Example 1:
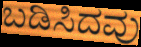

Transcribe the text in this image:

ಬಡಿಸಿದವು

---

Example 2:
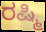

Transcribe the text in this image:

ರಷ್ಮಿ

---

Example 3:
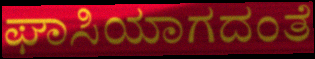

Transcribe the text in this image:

ಘಾಸಿಯಾಗದಂತೆ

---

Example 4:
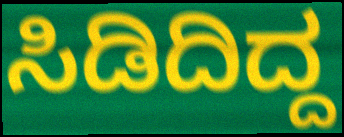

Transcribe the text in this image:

ಸಿಡಿದಿದ್ದ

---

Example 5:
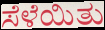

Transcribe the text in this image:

ಸೆಳೆಯಿತು